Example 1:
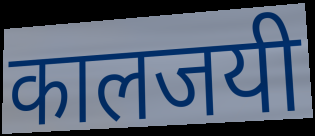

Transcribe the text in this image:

कालजयी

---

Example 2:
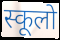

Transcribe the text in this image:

स्कूलो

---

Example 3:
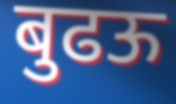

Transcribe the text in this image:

बुढऊ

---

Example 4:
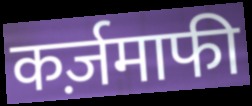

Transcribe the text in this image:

कर्ज़माफी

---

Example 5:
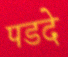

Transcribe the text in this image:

पडदे